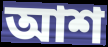
আশ